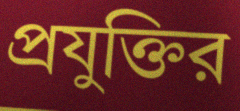
প্রযুক্তির